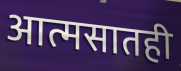
आत्मसातही